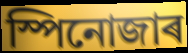
স্পিনোজাৰ